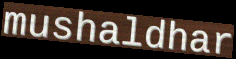
mushaldhar